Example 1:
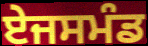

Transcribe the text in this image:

ਏਜਸਮੰਡ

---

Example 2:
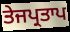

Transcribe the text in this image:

ਤੇਜਪ੍ਰਤਾਪ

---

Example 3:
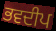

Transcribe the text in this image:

ਭਵਦੀਪ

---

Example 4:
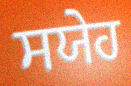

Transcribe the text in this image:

ਸਯੇਹ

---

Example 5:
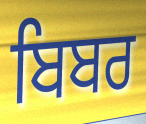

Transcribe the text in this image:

ਬਿਬਰ